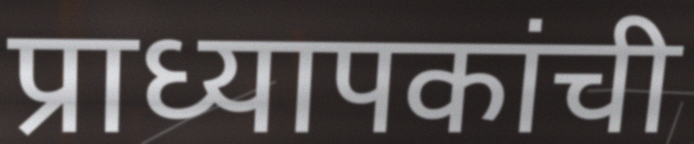
प्राध्यापकांची